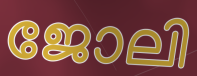
ജോലി